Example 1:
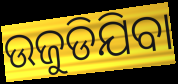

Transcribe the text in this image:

ଉଜୁଡିଯିବା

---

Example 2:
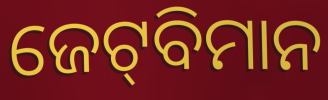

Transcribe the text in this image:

ଜେଟ୍‍ବିମାନ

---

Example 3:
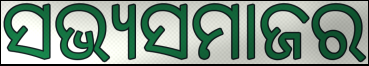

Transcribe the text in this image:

ସଭ୍ୟସମାଜର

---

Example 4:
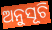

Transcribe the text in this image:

ଅନୁସୂଚି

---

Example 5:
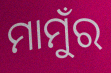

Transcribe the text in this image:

ମାମୁଁର